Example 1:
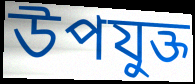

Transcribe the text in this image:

উপযুক্ত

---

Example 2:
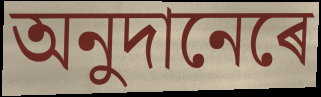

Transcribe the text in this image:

অনুদানেৰে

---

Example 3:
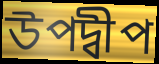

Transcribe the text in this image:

উপদ্বীপ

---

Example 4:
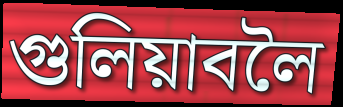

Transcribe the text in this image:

গুলিয়াবলৈ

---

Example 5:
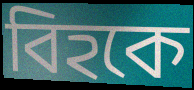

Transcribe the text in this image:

বিহকে